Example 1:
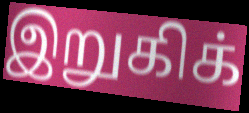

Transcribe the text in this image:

இறுகிக்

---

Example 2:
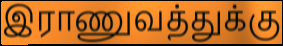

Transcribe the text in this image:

இராணுவத்துக்கு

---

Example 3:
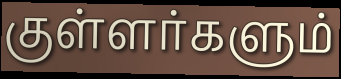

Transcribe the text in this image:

குள்ளர்களும்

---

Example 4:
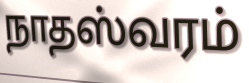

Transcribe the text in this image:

நாதஸ்வரம்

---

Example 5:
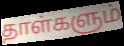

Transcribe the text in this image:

தாள்களும்